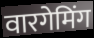
वारगेमिंग